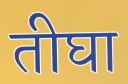
तीघा